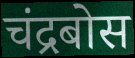
चंद्रबोस